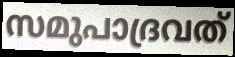
സമുപാദ്രവത്